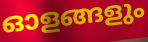
ഓളങ്ങളും